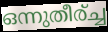
ഒന്നുതീര്ച്ച